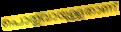
പൊതുവായുള്ളതാണ്